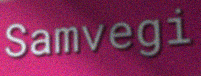
Samvegi